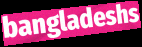
bangladeshs